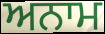
ਅਨਾਮ